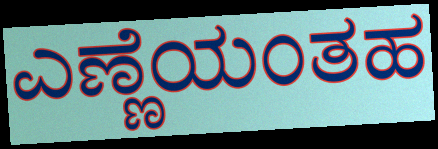
ಎಣ್ಣೆಯಂತಹ